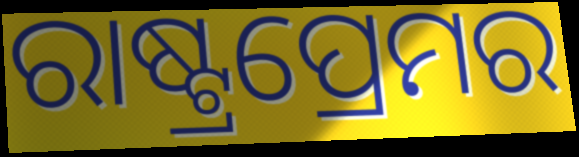
ରାଷ୍ଟ୍ରପ୍ରେମର